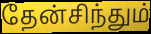
தேன்சிந்தும்